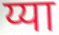
य्या